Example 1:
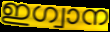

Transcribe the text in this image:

ഇഗ്വാന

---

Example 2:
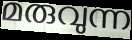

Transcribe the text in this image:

മരുവുന്ന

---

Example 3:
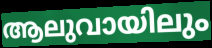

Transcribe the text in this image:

ആലുവായിലും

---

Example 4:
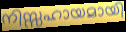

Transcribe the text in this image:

നിസ്സഹായമായി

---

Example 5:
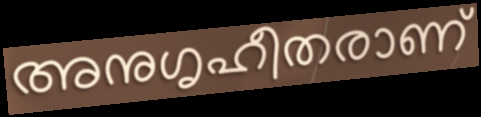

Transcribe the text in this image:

അനുഗൃഹീതരാണ്